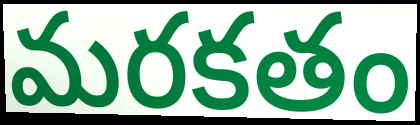
మరకతం